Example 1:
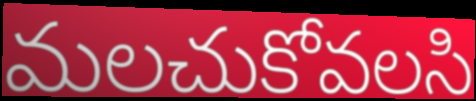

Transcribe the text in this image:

మలచుకోవలసి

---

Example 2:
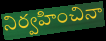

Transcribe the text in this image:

నిర్వహించినా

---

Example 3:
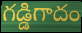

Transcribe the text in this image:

గడ్డిగాదం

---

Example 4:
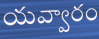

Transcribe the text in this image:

యవ్వారం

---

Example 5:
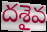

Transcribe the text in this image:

దశైవ